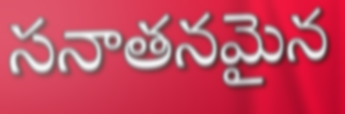
సనాతనమైన